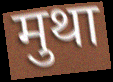
मुथा